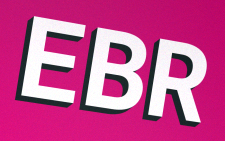
EBR